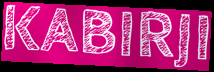
KABIRJI